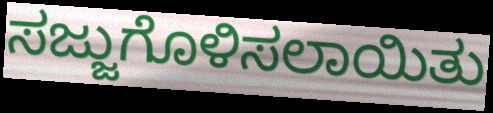
ಸಜ್ಜುಗೊಳಿಸಲಾಯಿತು